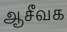
ஆசீவக